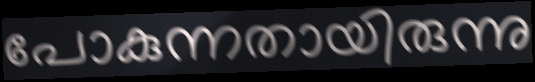
പോകുന്നതായിരുന്നു